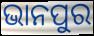
ଭାନପୁର